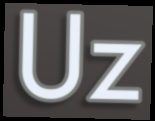
Uz